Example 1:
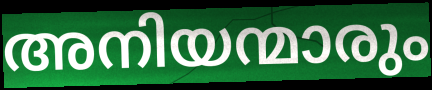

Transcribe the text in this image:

അനിയന്മാരും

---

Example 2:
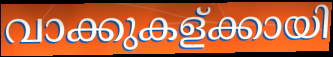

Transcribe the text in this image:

വാക്കുകള്ക്കായി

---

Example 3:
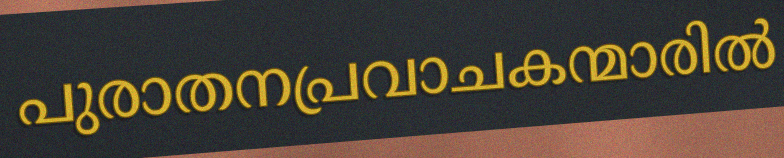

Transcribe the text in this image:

പുരാതനപ്രവാചകന്മാരിൽ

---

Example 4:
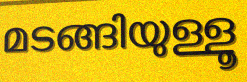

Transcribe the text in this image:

മടങ്ങിയുള്ളൂ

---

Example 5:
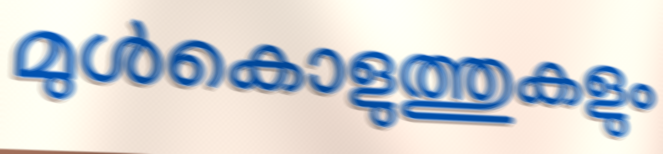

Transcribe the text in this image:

മുൾകൊളുത്തുകളും